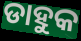
ଡାହୁକ